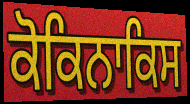
ਕੋਕਿਨਾਕਿਸ